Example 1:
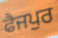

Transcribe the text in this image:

ਫੈਜਪੁਰ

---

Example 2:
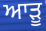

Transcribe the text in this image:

ਆੜੂ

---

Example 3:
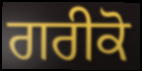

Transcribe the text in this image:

ਗਰੀਕੋ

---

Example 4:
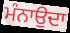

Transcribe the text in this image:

ਮੰਨਾਉਦਾ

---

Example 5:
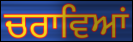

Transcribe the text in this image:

ਚਰਾਵਿਆਂ